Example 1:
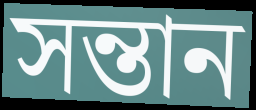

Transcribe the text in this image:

সন্তান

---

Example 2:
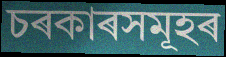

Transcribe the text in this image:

চৰকাৰসমূহৰ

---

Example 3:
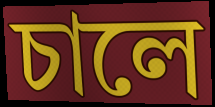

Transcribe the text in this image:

চালে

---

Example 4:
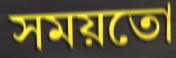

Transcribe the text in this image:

সময়তো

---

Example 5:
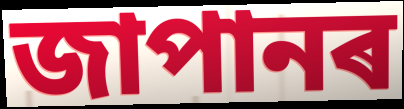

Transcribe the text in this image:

জাপানৰ